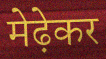
मेढ़ेकर